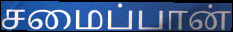
சமைப்பான்